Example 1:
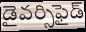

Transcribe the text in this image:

డైవర్సిఫైడ్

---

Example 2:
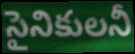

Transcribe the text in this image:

సైనికులనీ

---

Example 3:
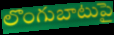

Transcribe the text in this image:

లొంగుబాటుపై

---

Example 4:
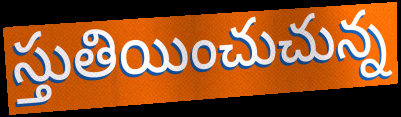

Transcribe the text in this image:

స్తుతియించుచున్న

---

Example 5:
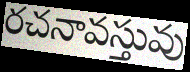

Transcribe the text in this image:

రచనావస్తువు